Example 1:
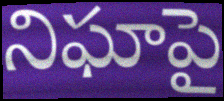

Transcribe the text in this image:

నిఘాపై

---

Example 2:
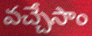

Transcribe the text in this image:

వచ్చేసాం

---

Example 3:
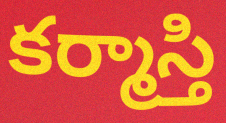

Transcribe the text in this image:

కర్మాస్తి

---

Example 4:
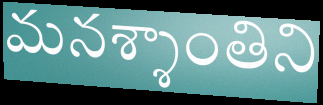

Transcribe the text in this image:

మనశ్శాంతిని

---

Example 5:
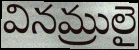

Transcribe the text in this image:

వినమ్రులై